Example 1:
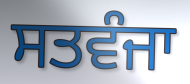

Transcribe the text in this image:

ਸਤਵੰਜਾ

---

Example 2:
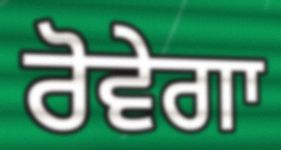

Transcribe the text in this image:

ਰੋਵੇਗਾ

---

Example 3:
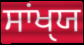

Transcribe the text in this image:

ਸਾਂਖੑਯ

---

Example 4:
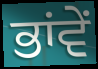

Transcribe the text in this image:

ਭਾਂਵੇਂ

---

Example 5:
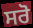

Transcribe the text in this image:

ਸਰੋ